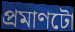
প্ৰমাণটো